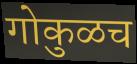
गोकुळच